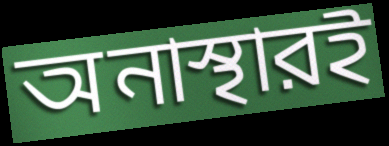
অনাস্থারই